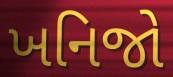
ખનિજો